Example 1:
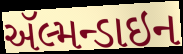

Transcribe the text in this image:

ઍલ્મન્ડાઇન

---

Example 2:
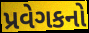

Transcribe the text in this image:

પ્રવેગકનો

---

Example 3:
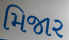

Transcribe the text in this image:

મિજાર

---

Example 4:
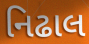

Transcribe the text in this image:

નિઢાલ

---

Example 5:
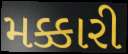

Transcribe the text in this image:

મક્કારી